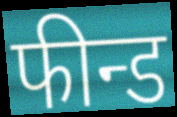
फीन्ड